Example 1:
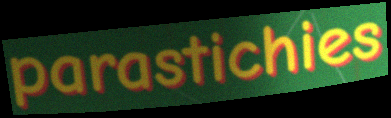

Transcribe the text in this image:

parastichies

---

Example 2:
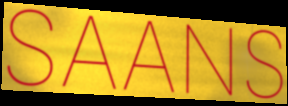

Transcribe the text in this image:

SAANS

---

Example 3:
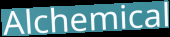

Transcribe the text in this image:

Alchemical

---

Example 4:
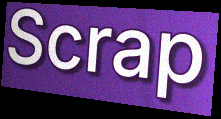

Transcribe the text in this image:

Scrap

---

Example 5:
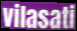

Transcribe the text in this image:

vilasati